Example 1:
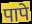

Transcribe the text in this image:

पापे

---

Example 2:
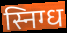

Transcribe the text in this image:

स्‍निग्ध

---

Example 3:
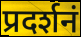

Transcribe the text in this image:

प्रदर्शनं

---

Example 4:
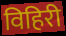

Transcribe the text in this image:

विहिरी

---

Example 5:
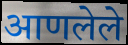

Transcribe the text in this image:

आणलेले